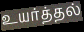
உயர்த்தல்